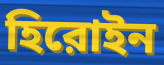
হিরোইন